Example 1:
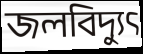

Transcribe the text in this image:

জলবিদ্যুৎ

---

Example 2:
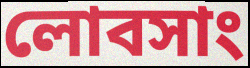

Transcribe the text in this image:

লোবসাং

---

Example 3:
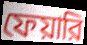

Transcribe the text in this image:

ফেয়ারি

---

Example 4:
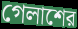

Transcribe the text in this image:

গেলাশের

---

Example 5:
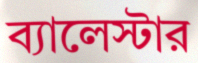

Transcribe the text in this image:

ব্যালেস্টার